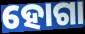
ହୋଗା